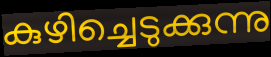
കുഴിച്ചെടുക്കുന്നു